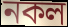
নকল